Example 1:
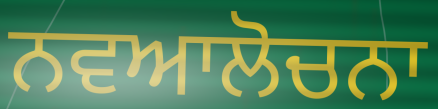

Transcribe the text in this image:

ਨਵਆਲੋਚਨਾ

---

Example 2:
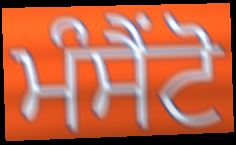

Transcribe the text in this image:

ਮੰਸੈਂਟੋ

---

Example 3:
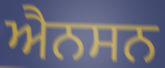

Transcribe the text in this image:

ਐਨਸਨ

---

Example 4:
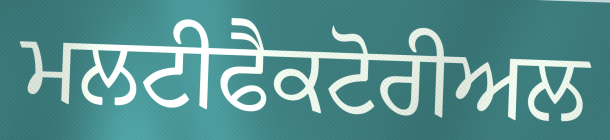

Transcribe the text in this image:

ਮਲਟੀਫੈਕਟੋਰੀਅਲ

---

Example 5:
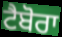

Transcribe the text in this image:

ਟੈਬੋਰਾ